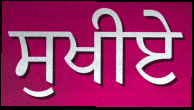
ਸੁਖੀਏ